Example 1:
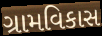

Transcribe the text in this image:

ગ્રામવિકાસ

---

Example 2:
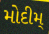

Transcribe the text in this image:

મોદીમ્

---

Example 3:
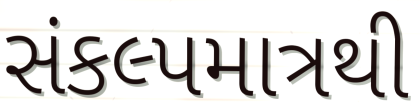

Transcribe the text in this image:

સંકલ્પમાત્રથી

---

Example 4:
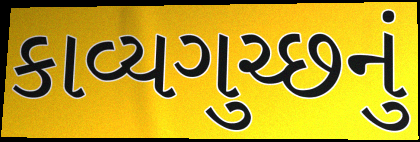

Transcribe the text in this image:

કાવ્યગુચ્છનું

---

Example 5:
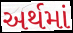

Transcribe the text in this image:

અર્થમાં